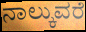
ನಾಲ್ಕುವರೆ